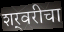
शर्वरीचा